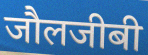
जौलजीबी